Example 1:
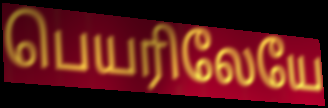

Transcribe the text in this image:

பெயரிலேயே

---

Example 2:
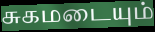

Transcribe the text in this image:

சுகமடையும்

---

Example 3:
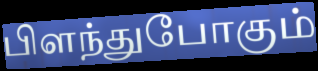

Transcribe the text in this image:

பிளந்துபோகும்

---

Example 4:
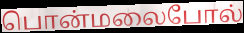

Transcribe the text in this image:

பொன்மலைபோல்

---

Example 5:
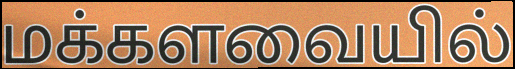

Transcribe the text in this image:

மக்களவையில்